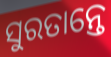
ସୁରତାନ୍ତେ